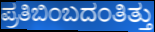
ಪ್ರತಿಬಿಂಬದಂತಿತ್ತು